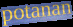
potanan